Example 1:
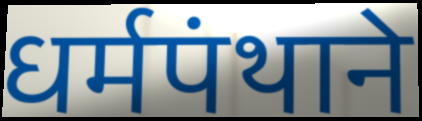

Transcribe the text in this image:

धर्मपंथाने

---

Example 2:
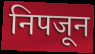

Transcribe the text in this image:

निपजून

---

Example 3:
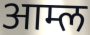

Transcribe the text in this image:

आम्ल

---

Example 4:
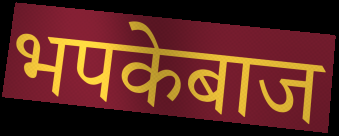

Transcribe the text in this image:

भपकेबाज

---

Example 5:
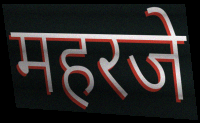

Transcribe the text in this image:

महरजे